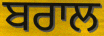
ਬਰਾਲ